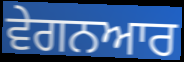
ਵੇਗਨਆਰ